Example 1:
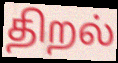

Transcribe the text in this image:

திறல்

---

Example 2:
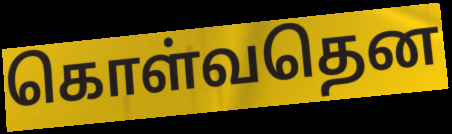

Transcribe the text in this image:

கொள்வதென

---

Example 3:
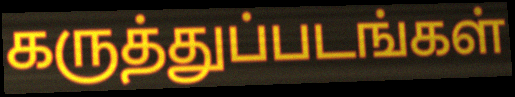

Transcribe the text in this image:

கருத்துப்படங்கள்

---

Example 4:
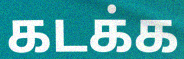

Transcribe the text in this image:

கடக்க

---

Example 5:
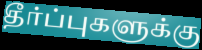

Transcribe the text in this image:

தீர்ப்புகளுக்கு